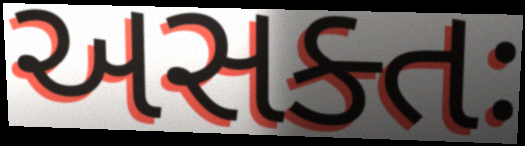
અસક્તઃ